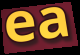
ea